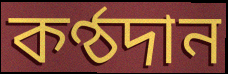
কণ্ঠদান